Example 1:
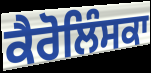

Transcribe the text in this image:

ਕੈਰੋਲਿੰਸਕਾ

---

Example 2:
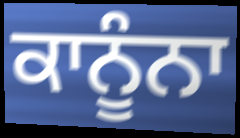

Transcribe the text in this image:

ਕਾਨੂੰਨਾ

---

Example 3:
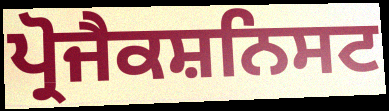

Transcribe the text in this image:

ਪ੍ਰੋਜੈਕਸ਼ਨਿਸਟ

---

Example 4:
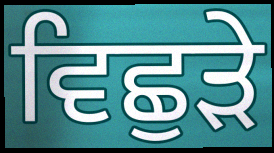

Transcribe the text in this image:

ਵਿਛੁੜੇ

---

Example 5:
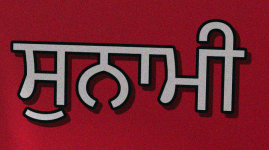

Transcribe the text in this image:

ਸੁਨਾਮੀ